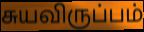
சுயவிருப்பம்